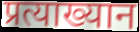
प्रत्याख्यान